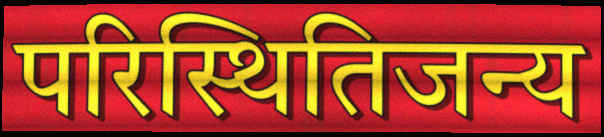
परिस्थितिजन्य